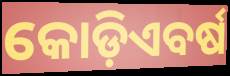
କୋଡ଼ିଏବର୍ଷ